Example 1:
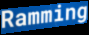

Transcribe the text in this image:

Ramming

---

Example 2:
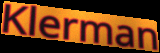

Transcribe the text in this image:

Klerman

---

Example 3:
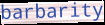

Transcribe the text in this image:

barbarity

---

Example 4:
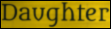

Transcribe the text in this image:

Daughter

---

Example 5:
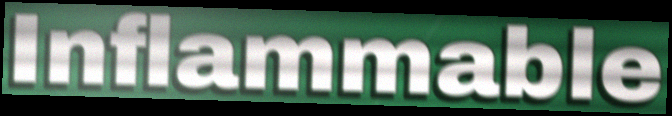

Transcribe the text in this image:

Inflammable